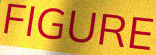
FIGURE